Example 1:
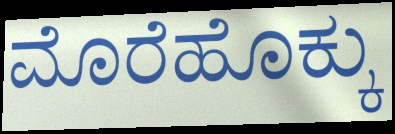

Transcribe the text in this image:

ಮೊರೆಹೊಕ್ಕು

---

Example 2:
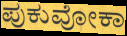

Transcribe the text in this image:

ಪುಕುವೋಕಾ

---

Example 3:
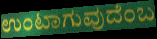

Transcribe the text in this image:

ಉಂಟಾಗುವುದೆಂಬ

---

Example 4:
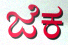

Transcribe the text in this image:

ಜೆಕ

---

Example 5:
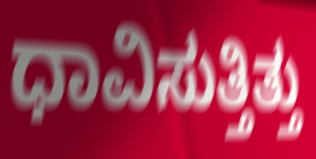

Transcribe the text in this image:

ಧಾವಿಸುತ್ತಿತ್ತು